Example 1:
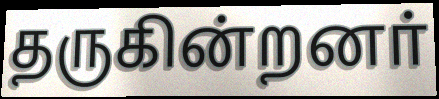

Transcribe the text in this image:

தருகின்றனர்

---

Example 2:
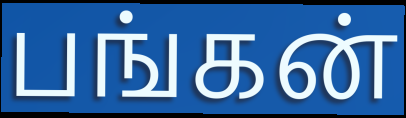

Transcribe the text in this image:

பங்கன்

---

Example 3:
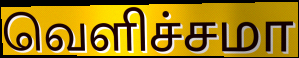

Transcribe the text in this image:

வெளிச்சமா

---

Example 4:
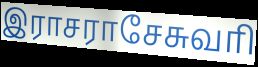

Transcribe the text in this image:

இராசராசேசுவரி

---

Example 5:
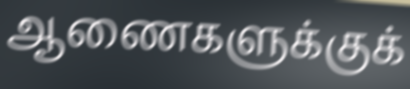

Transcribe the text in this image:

ஆணைகளுக்குக்